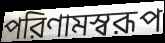
পরিণামস্বরূপ